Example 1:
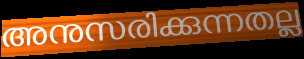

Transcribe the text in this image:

അനുസരിക്കുന്നതല്ല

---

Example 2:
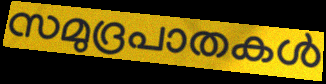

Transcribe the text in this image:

സമുദ്രപാതകൾ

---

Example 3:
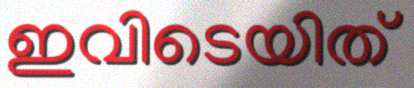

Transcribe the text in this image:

ഇവിടെയിത്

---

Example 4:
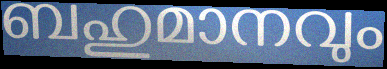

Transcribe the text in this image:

ബഹുമാനവും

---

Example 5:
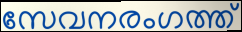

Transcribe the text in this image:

സേവനരംഗത്ത്